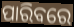
ପାରିବରେ